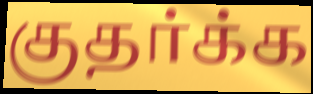
குதர்க்க